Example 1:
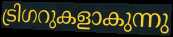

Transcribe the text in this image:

ട്രിഗറുകളാകുന്നു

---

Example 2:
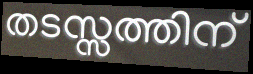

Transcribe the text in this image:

തടസ്സത്തിന്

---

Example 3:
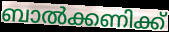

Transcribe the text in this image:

ബാൽക്കണിക്ക്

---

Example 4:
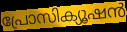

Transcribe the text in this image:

പ്രോസിക്യൂഷൻ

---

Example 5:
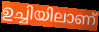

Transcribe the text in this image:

ഉച്ചിയിലാണ്